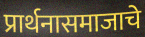
प्रार्थनासमाजाचे